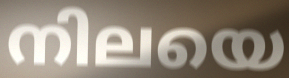
നിലയെ